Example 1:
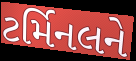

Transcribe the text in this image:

ટર્મિનલને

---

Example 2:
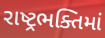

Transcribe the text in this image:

રાષ્ટ્રભક્તિમાં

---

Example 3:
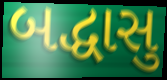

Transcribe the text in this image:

બદ્ધાસુ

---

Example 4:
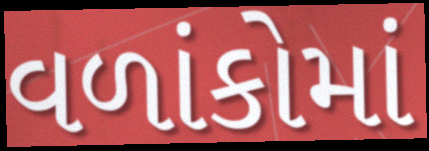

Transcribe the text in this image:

વળાંકોમાં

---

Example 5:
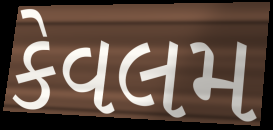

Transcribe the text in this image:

કેવલમ